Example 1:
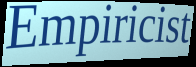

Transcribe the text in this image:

Empiricist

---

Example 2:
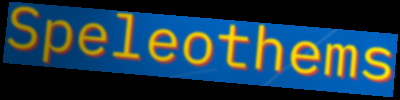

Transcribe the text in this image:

Speleothems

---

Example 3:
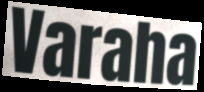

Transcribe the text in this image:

Varaha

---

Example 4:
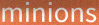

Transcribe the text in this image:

minions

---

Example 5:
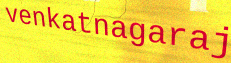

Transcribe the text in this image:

venkatnagaraj